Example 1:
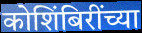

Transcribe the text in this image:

कोशिंबिरींच्या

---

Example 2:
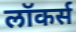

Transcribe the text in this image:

लॉकर्स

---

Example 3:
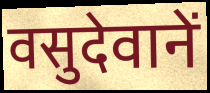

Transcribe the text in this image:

वसुदेवानें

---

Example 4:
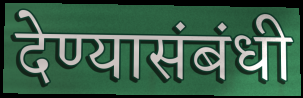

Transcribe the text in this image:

देण्यासंबंधी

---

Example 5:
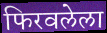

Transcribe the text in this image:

फिरवलेला